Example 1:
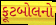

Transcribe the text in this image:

ફૂટબોલનો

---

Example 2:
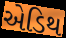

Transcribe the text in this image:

એડિથ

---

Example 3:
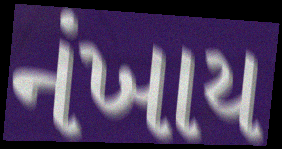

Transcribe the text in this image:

નંખાય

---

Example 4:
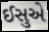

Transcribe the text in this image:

ઈસુએ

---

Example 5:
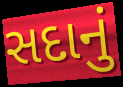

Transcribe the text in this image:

સદાનું